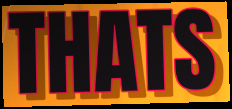
THATS